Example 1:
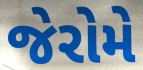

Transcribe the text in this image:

જેરોમે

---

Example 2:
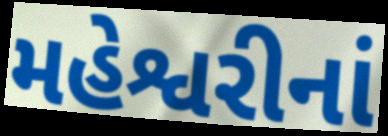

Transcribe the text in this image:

મહેશ્વરીનાં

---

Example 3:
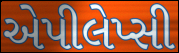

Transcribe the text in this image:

એપીલેપ્સી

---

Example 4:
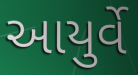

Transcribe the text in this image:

આયુર્વે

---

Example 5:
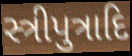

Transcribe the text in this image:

સ્ત્રીપુત્રાદિ